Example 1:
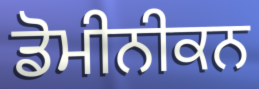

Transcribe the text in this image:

ਡੋਮੀਨੀਕਨ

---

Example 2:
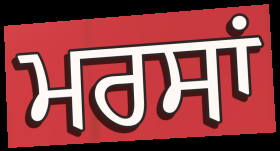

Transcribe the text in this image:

ਮਰਸਾਂ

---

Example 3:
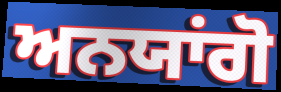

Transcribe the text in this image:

ਅਨਯਾਂਗੋ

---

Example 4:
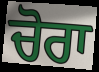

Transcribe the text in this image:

ਚੋਰਾ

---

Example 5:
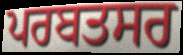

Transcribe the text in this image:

ਪਰਬਤਸਰ